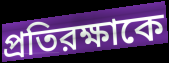
প্রতিরক্ষাকে